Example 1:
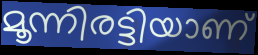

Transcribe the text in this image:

മൂന്നിരട്ടിയാണ്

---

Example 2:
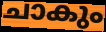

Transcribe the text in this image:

ചാകും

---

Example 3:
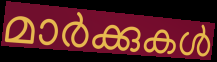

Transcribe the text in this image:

മാർക്കുകൾ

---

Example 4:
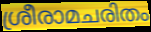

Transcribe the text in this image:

ശ്രീരാമചരിതം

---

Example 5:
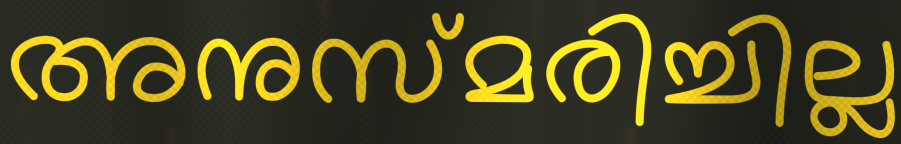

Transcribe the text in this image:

അനുസ്മരിച്ചില്ല